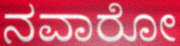
ನವಾರೋ